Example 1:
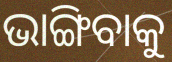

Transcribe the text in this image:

ଭାଙ୍ଗିବାକୁ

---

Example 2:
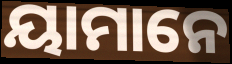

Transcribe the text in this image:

ୟାମାନେ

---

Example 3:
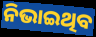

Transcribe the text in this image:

ନିଭାଇଥିବ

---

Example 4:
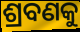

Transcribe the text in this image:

ଶ୍ରବଣକୁ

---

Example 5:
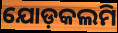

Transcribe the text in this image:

ଯୋଡ଼କଲମି